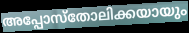
അപ്പോസ്തോലിക്കയായും